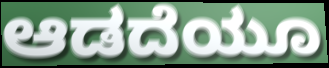
ಆಡದೆಯೂ